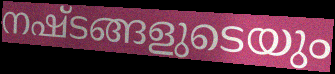
നഷ്ടങ്ങളുടെയും